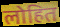
लोहित